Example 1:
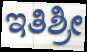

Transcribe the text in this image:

ಇತಿಶ್ರೀ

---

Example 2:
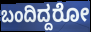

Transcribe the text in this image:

ಬಂದಿದ್ದರೋ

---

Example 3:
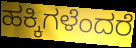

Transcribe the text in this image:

ಹಕ್ಕಿಗಳೆಂದರೆ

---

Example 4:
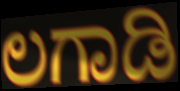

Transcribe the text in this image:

ಲಗಾಡಿ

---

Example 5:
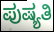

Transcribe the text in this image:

ಪುಷ್ಯತಿ